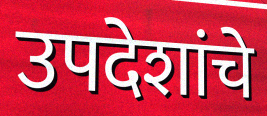
उपदेशांचे